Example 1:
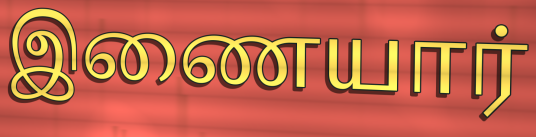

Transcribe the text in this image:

இணையார்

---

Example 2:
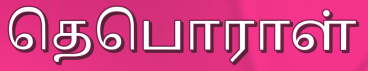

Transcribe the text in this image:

தெபொராள்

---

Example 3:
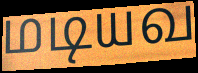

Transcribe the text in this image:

மடியவ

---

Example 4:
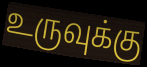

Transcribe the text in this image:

உருவுக்கு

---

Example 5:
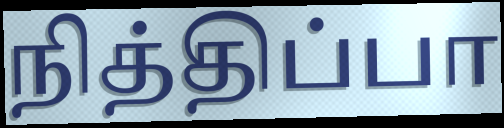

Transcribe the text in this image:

நித்திப்பா